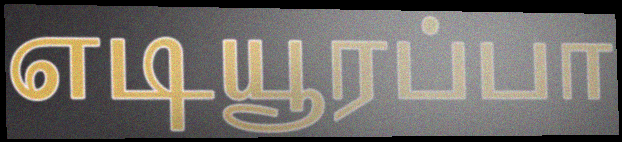
எடியூரப்பா